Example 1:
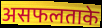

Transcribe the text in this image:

असफलताके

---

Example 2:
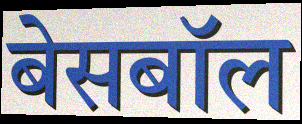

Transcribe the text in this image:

बेसबॉल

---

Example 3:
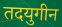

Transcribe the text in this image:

तदयुगीन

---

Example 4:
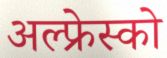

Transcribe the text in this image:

अल्फ्रेस्को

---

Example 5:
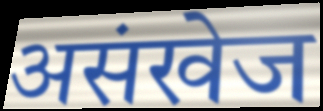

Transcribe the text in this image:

असंखेज